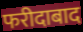
फरीदाबाद